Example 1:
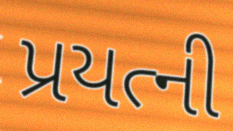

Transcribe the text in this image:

પ્રયત્ની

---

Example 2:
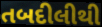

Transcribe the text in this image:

તબદીલીથી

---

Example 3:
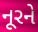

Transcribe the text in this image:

નૂરને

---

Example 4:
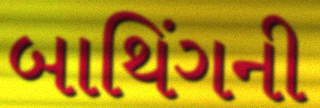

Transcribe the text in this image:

બાથિંગની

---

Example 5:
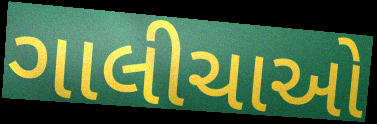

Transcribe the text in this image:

ગાલીચાઓ